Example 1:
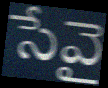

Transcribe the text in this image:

సేవై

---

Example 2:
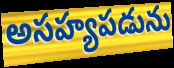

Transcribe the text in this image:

అసహ్యపడును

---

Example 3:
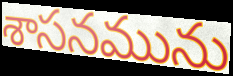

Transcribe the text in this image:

శాసనమును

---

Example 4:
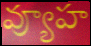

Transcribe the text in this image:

వ్యూహ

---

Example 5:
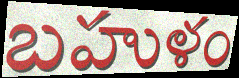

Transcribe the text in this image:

బహుళం